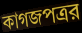
কাগজপত্রর